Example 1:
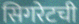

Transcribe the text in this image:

सिगरेटची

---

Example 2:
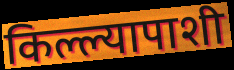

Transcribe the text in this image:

किल्ल्यापाशी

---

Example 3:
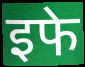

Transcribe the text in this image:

इफे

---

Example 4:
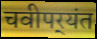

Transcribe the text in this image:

चवीपर्यंत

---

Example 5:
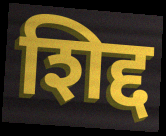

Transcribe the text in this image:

शिद्द